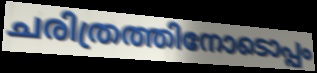
ചരിത്രത്തിനോടൊപ്പം